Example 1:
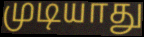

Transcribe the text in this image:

முடியாது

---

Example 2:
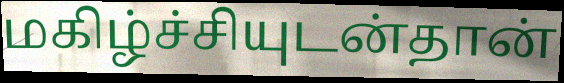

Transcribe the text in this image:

மகிழ்ச்சியுடன்தான்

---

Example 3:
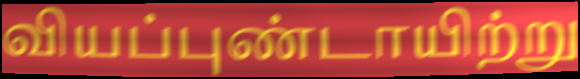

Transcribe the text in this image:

வியப்புண்டாயிற்று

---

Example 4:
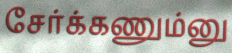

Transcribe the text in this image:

சேர்க்கணும்னு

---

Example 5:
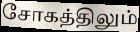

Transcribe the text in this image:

சோகத்திலும்